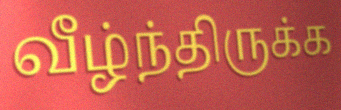
வீழ்ந்திருக்க